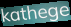
kathege